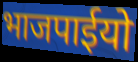
भाजपाईयो